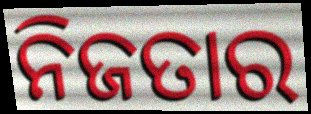
ନିଜତାର